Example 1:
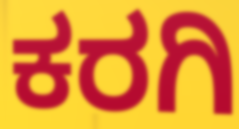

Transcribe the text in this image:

ಕರಗಿ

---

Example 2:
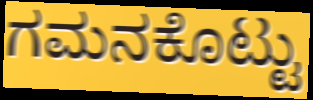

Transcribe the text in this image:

ಗಮನಕೊಟ್ಟು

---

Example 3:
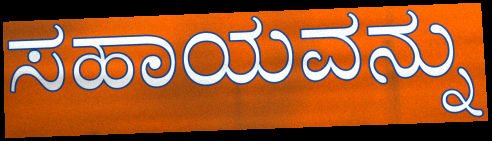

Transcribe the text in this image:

ಸಹಾಯವನ್ನು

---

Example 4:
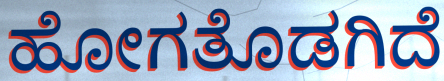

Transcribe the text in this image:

ಹೋಗತೊಡಗಿದೆ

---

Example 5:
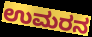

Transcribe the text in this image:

ಉಮರನ